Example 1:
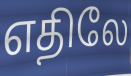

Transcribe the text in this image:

எதிலே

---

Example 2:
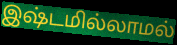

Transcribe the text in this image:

இஷ்டமில்லாமல்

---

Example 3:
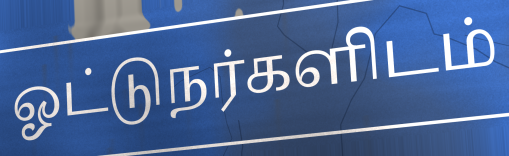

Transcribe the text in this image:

ஓட்டுநர்களிடம்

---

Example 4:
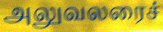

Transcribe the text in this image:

அலுவலரைச்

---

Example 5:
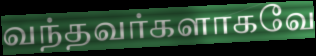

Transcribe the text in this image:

வந்தவர்களாகவே